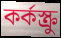
কর্কস্ক্রু